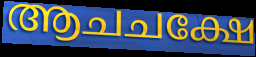
ആചചക്ഷേ